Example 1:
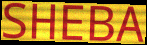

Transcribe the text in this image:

SHEBA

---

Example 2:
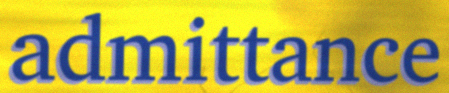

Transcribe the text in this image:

admittance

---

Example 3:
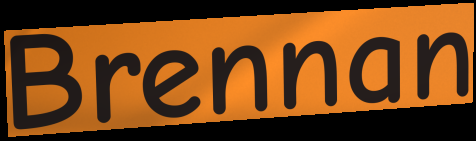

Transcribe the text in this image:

Brennan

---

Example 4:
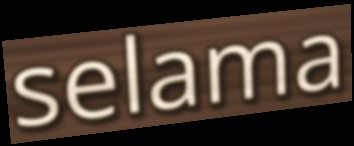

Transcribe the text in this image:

selama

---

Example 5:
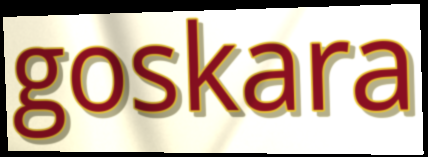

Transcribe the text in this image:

goskara